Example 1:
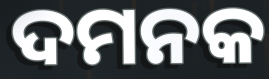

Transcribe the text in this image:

ଦମନକ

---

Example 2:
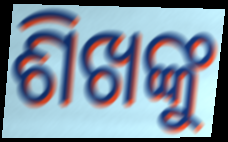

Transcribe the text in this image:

ଶିଖଙ୍କୁ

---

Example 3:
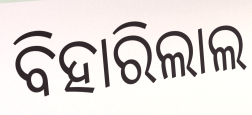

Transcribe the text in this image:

ବିହାରିଲାଲ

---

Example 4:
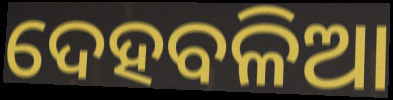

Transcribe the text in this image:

ଦେହବଳିଆ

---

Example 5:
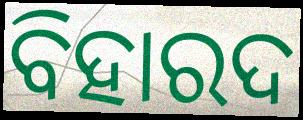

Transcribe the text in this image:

ବିହାରଦ